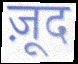
ज़ूद